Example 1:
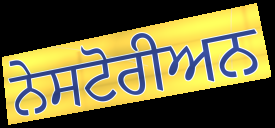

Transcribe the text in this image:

ਨੇਸਟੋਰੀਅਨ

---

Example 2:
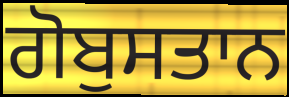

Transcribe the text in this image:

ਗੋਬੁਸਤਾਨ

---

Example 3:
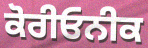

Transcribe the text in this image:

ਕੋਰੀਓਨੀਕ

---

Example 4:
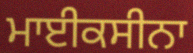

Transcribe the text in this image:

ਮਾਈਕਸੀਨਾ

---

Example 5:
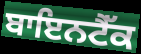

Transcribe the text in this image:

ਬਾਇਨਟੈੱਕ